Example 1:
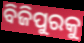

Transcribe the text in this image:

ବିଜିପୁରକୁ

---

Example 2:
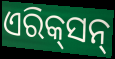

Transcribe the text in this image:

ଏରିକ୍‌ସନ୍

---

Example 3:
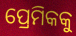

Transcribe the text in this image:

ପ୍ରେମିକକୁ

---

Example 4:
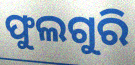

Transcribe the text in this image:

ଫୁଲଗୁରି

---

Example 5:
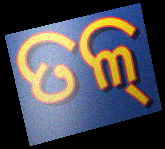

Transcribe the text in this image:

ତଳ୍